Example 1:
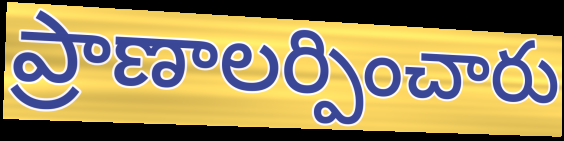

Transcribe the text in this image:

ప్రాణాలర్పించారు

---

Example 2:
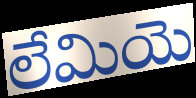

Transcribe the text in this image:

లేమియె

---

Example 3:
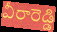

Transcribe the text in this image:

వీరారెడ్డి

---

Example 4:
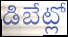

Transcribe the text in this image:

డిబేట్లో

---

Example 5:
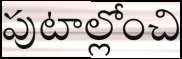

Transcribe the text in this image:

పుటాల్లోంచి